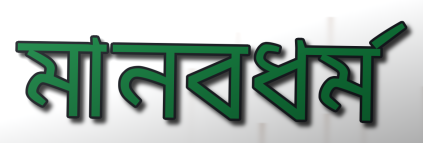
মানবধর্ম